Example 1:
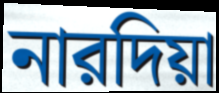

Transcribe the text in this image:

নারদিয়া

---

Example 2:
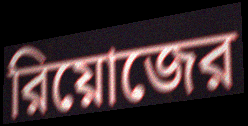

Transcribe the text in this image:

রিয়োজের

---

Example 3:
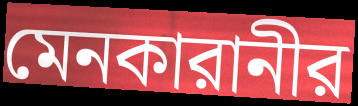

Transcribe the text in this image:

মেনকারানীর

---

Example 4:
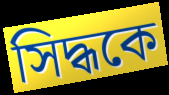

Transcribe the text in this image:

সিদ্ধকে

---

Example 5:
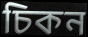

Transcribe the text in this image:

চিকন